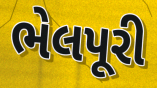
ભેલપૂરી